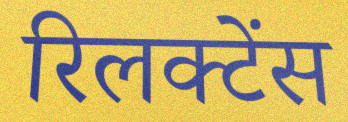
रिलक्टेंस